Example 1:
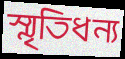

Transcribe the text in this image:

স্মৃতিধন্য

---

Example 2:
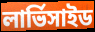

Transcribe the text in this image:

লার্ভিসাইড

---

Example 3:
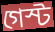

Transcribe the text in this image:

গেস্ট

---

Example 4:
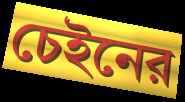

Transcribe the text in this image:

চেইনের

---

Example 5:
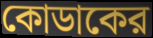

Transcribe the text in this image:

কোডাকের